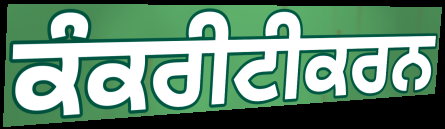
ਕੰਕਰੀਟੀਕਰਨ